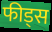
फीड्स